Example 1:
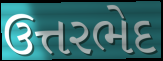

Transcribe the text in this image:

ઉત્તરભેદ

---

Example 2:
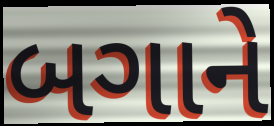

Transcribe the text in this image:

બગાને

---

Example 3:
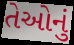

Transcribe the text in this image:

તેઓનું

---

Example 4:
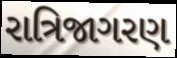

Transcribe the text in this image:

રાત્રિજાગરણ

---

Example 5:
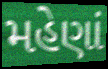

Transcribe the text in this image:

મહેણાં